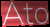
Ato